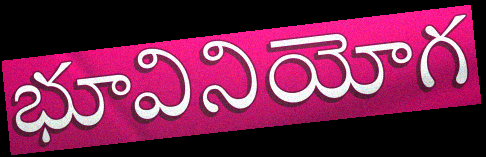
భూవినియోగ